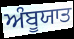
ਅੰਬੂਯਾਤ